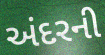
અંદરની